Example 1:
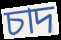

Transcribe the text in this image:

চাদ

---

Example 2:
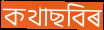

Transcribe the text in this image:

কথাছবিৰ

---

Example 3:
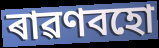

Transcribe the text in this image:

ৰাৱণবহো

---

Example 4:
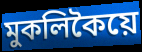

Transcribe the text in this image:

মুকলিকৈয়ে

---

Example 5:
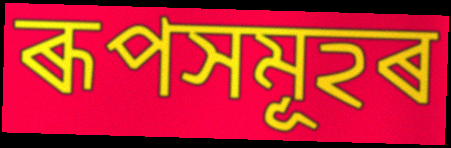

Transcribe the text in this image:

ৰূপসমূহৰ